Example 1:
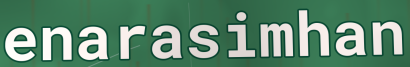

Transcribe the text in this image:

enarasimhan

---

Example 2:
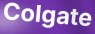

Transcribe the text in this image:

Colgate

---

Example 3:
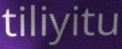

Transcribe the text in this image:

tiliyitu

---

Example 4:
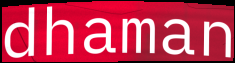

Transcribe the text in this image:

dhaman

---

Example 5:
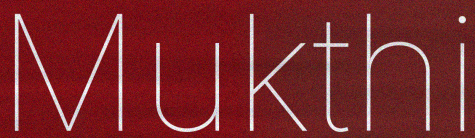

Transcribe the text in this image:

Mukthi